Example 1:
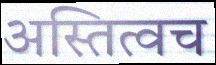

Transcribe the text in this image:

अस्तित्वच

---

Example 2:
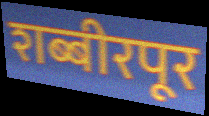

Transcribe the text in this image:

शब्बीरपूर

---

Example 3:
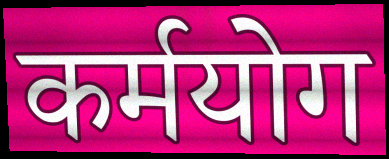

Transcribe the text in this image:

कर्मयोग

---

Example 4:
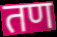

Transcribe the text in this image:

तण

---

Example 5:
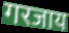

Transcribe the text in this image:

गरजाय